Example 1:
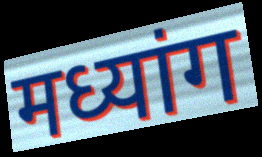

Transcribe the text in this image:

मध्यांग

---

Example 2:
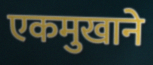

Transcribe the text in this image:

एकमुखाने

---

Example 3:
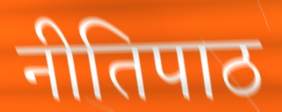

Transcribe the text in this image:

नीतिपाठ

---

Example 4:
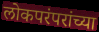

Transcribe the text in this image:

लोकपरंपरांच्या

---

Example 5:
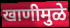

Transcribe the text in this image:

खाणीमुळे